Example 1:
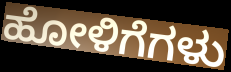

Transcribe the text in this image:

ಹೋಳಿಗೆಗಳು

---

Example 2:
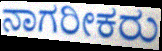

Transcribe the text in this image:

ನಾಗರೀಕರು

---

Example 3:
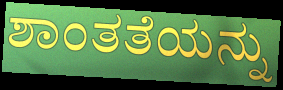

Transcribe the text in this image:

ಶಾಂತತೆಯನ್ನು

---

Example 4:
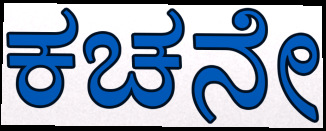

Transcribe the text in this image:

ಕಚನೇ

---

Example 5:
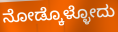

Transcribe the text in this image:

ನೋಡ್ಕೊಳ್ಳೋದು